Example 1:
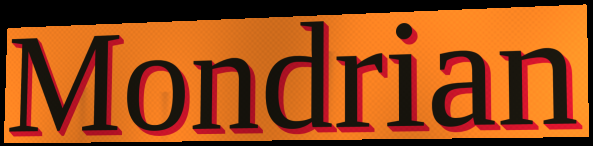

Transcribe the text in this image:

Mondrian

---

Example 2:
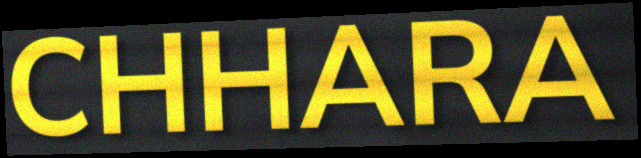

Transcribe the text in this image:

CHHARA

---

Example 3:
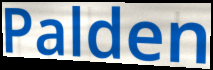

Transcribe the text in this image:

Palden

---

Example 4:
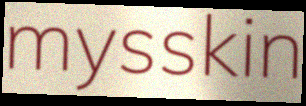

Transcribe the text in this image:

mysskin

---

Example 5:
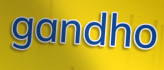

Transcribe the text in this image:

gandho